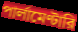
পার্লামেণ্টারি